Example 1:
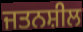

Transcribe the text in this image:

ਜਤਨਸ਼ੀਲ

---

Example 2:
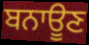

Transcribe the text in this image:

ਬਨਾਊਣ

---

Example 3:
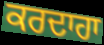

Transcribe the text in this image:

ਕਰਦਾਹਾ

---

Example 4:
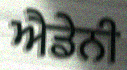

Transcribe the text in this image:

ਐਡੇਨੀ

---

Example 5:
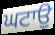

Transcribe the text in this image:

ਘਟਾਉ